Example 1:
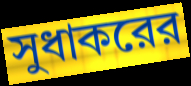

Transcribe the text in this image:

সুধাকরের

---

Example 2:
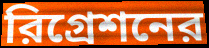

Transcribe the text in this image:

রিগ্রেশনের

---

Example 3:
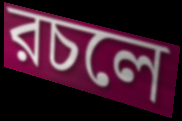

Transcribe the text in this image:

রচলে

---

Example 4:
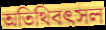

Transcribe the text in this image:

অতিথিবৎসল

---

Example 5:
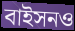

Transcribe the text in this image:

বাইসনও